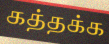
கத்தக்க